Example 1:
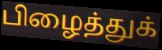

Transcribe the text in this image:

பிழைத்துக்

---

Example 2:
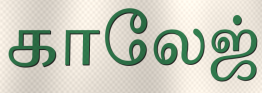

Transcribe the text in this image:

காலேஜ்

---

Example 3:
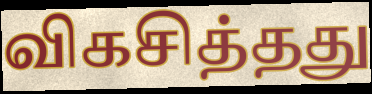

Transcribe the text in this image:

விகசித்தது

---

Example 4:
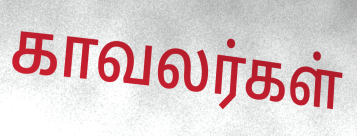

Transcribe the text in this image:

காவலர்கள்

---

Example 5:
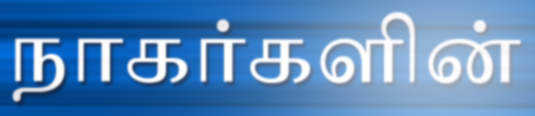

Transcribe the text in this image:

நாகர்களின்